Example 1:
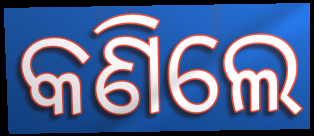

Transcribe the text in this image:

କଣିଲେ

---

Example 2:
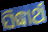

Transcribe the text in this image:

ସିଦ୍ଧାର୍ଥ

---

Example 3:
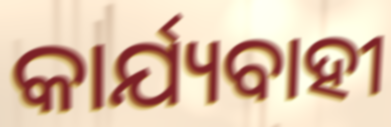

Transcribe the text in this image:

କାର୍ଯ୍ୟବାହୀ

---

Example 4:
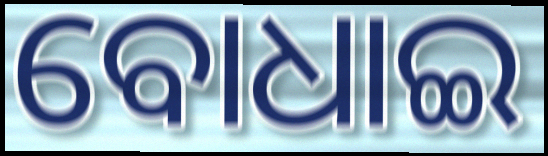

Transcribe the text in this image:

ବୋଧାଇ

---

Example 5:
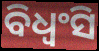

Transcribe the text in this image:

ବିଧ୍ୱଂସି